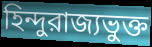
হিন্দুরাজ্যভুক্ত